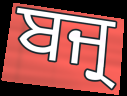
ਬਜ੍ਰ